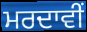
ਮਰਦਾਵੀਂ